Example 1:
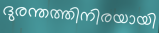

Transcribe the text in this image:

ദുരന്തത്തിനിരയായി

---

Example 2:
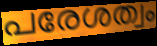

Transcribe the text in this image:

പരേശത്വം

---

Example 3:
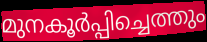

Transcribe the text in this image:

മുനകൂർപ്പിച്ചെത്തും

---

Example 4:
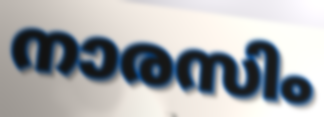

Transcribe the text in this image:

നാരസിം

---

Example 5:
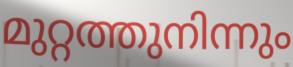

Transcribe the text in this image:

മുറ്റത്തുനിന്നും